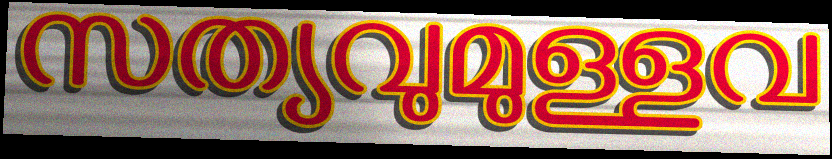
സത്യവുമുള്ളവ